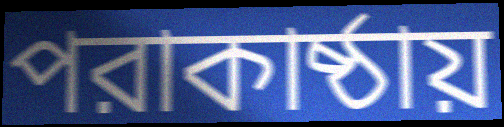
পরাকাষ্ঠায়